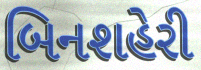
બિનશહેરી